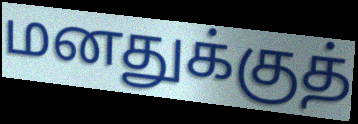
மனதுக்குத்